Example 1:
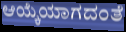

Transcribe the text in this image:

ಆಯ್ಕೆಯಾಗದಂತೆ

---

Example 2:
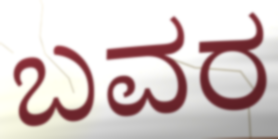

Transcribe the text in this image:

ಬವರ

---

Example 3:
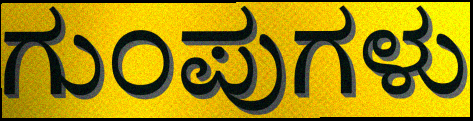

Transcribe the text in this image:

ಗುಂಪುಗಳು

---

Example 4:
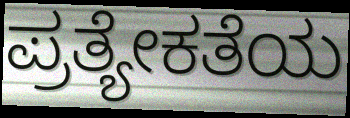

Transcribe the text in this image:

ಪ್ರತ್ಯೇಕತೆಯ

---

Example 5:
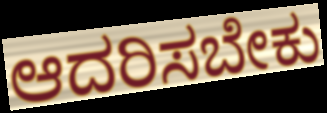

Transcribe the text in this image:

ಆದರಿಸಬೇಕು